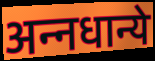
अन्नधान्ये